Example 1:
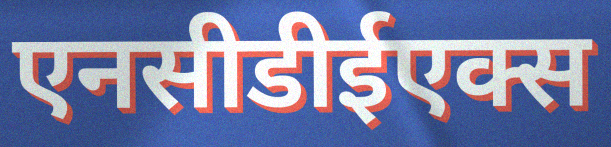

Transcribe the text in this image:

एनसीडीईएक्स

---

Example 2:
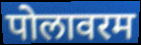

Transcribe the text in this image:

पोलावरम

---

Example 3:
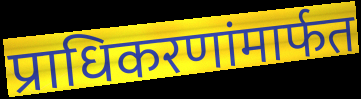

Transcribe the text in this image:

प्राधिकरणांमार्फत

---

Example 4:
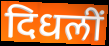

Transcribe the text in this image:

दिधलीं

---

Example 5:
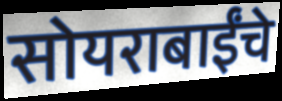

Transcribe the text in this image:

सोयराबाईंचे